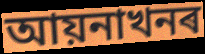
আয়নাখনৰ